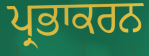
ਪ੍ਰਭਾਕਰਨ